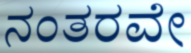
ನಂತರವೇ